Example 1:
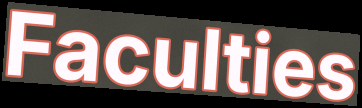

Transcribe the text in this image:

Faculties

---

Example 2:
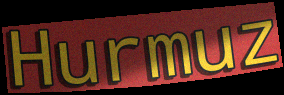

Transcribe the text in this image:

Hurmuz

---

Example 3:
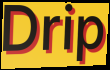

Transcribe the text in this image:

Drip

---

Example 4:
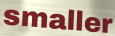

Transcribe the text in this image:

smaller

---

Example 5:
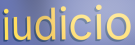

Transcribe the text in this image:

iudicio